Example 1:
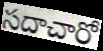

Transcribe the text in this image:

సదాచారో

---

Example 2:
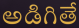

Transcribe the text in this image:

అడిగితే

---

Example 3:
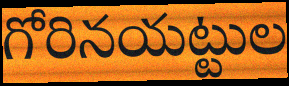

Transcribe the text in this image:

గోరినయట్టుల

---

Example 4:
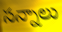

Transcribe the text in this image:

సన్నాలు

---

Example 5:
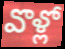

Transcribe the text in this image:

వొళ్లో